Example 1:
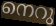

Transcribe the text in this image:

നെറു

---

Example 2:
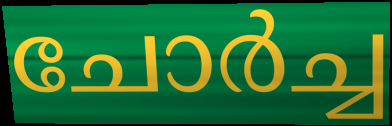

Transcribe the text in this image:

ചോർച്ച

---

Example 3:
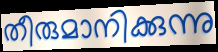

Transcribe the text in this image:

തീരുമാനിക്കുന്നു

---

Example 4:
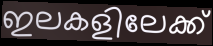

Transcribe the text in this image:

ഇലകളിലേക്ക്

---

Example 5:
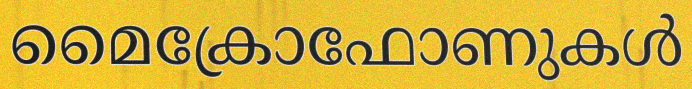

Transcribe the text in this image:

മൈക്രോഫോണുകൾ